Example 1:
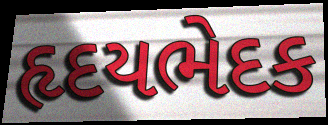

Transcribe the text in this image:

હૃદયભેદક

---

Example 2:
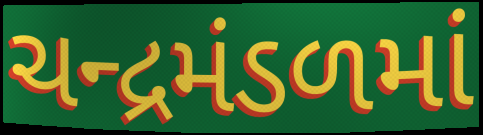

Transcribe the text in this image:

ચન્દ્રમંડળમાં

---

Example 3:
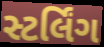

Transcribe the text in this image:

સ્ટર્લિંગ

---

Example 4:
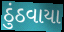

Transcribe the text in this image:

ઠુંઠવાયા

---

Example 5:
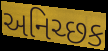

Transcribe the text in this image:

અનિચ્છક